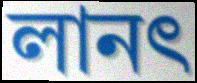
লানৎ